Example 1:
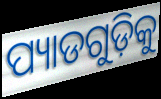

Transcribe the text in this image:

ପ୍ୟାଡଗୁଡ଼ିକୁ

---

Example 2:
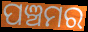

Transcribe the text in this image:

ପଞ୍ଚମର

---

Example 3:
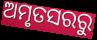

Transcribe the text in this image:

ଅମୃତସରରୁ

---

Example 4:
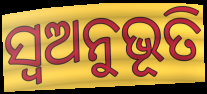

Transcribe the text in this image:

ସ୍ୱଅନୁଭୂତି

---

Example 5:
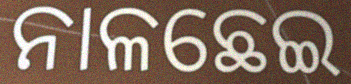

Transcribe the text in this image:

ନାଳଛେଇ